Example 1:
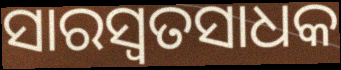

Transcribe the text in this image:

ସାରସ୍ଵତସାଧକ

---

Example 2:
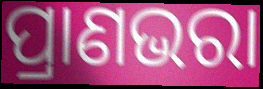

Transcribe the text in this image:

ପ୍ରାଣଭରା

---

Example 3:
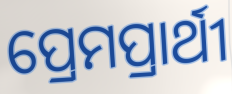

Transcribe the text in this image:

ପ୍ରେମପ୍ରାର୍ଥୀ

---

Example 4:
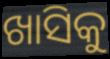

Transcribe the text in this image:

ଖାସିକୁ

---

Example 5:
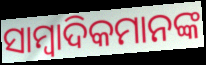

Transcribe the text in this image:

ସାମ୍ବାଦିକମାନଙ୍କ